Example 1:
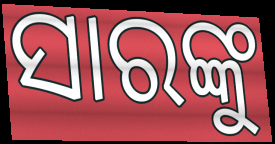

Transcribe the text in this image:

ସାରଙ୍କୁ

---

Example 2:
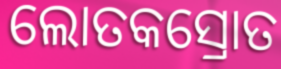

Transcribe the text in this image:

ଲୋତକସ୍ରୋତ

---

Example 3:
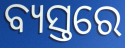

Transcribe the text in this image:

ବ୍ୟସ୍ତରେ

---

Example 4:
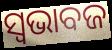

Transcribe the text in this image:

ସ୍ୱଭାବଜ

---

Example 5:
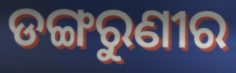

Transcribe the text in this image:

ଡଙ୍ଗରୁଣୀର